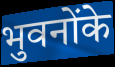
भुवनोंके